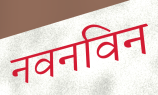
नवनविन